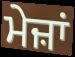
ਮੇਜ਼ਾਂ